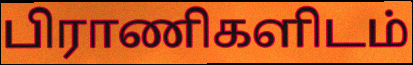
பிராணிகளிடம்